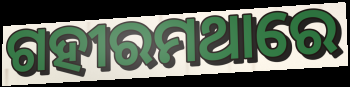
ଗହୀରମଥାରେ